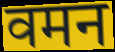
वमन